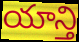
యాన్తి